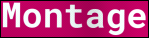
Montage